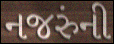
નજરુંની